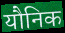
यौनिक